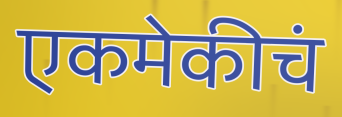
एकमेकीचं